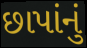
છાપાંનું